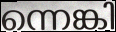
ന്നെങ്കി